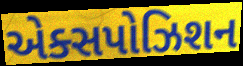
એક્સપોઝિશન